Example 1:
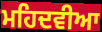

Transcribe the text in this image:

ਮਹਿਦਵੀਆ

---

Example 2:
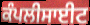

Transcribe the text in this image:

ਕੰਪਲੀਸਾਈਟ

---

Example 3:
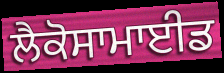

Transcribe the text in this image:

ਲੈਕੋਸਾਮਾਈਡ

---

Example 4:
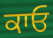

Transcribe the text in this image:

ਕਾਓ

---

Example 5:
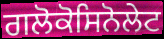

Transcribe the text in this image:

ਗਲੋਕੋਸਿਨੋਲੇਟ